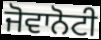
ਜੋਵਾਨੋਟੀ